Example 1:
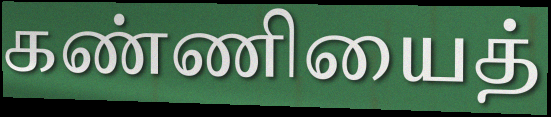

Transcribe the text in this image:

கண்ணியைத்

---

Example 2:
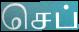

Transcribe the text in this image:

செப்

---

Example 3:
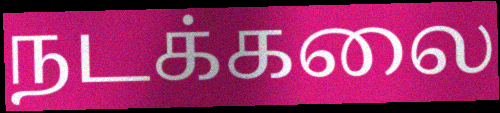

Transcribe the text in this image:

நடக்கலை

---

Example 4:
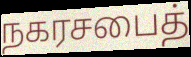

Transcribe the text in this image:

நகரசபைத்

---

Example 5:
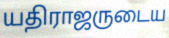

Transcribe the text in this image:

யதிராஜருடைய